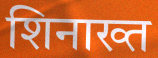
शिनाख्त